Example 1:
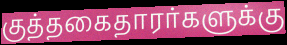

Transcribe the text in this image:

குத்தகைதாரர்களுக்கு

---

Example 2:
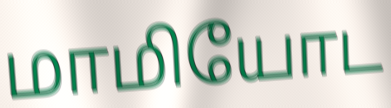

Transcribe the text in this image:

மாமியோட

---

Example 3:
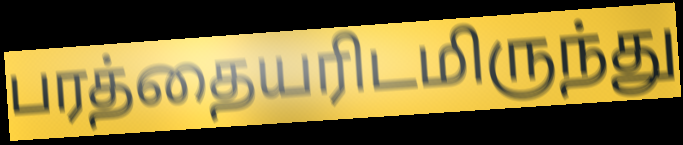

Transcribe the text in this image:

பரத்தையரிடமிருந்து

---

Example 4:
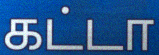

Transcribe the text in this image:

கட்டா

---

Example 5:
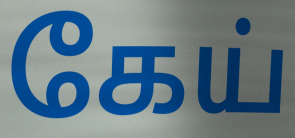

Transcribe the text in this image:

கேய்